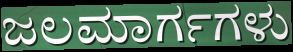
ಜಲಮಾರ್ಗಗಳು